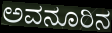
ಅವನೂರಿನ